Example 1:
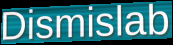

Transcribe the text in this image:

Dismislab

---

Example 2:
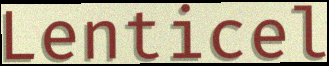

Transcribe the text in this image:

Lenticel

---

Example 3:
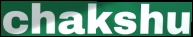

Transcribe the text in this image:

chakshu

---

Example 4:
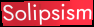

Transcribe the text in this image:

Solipsism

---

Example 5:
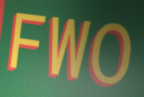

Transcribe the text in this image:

FWO